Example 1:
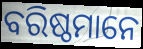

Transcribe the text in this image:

ବରିଷ୍ଠମାନେ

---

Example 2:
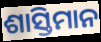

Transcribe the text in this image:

ଶାସ୍ତିମାନ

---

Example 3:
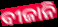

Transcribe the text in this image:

ବୀଜାନି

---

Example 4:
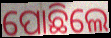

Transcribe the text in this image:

ପୋଛିଲେ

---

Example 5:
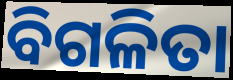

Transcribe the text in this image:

ବିଗଳିତା